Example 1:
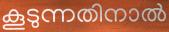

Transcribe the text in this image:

കൂടുന്നതിനാൽ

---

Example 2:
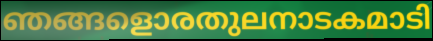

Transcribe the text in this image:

ഞങ്ങളൊരതുലനാടകമാടി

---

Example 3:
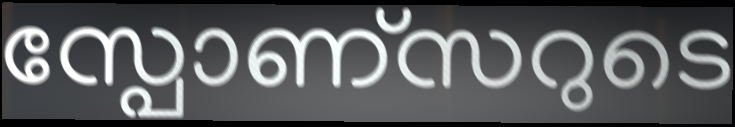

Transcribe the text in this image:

സ്പോണ്സറുടെ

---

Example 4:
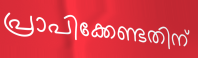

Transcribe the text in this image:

പ്രാപിക്കേണ്ടതിന്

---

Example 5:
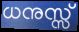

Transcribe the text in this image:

ധനുസ്സ്